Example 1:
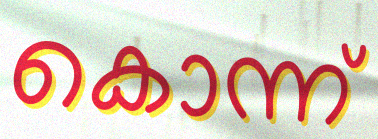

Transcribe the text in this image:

കൊന്ന്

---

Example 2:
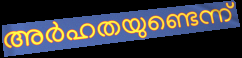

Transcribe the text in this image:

അർഹതയുണ്ടെന്ന്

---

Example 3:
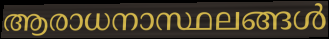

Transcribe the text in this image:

ആരാധനാസ്ഥലങ്ങൾ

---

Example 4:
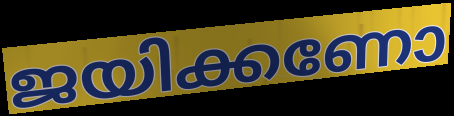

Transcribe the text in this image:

ജയിക്കണോ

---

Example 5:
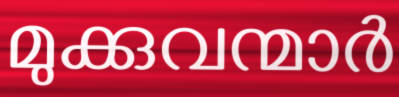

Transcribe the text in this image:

മുക്കുവന്മാർ